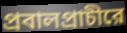
প্রবালপ্রাচীরে